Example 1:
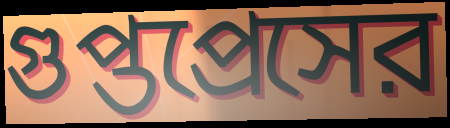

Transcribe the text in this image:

গুপ্তপ্রেসের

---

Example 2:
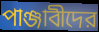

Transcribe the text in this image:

পাঞ্জাবীদের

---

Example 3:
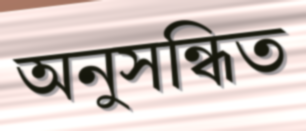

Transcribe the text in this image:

অনুসন্ধিত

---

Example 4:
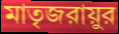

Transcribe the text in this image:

মাতৃজরায়ুর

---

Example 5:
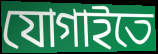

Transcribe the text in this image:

যোগাইতে